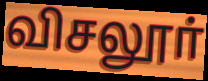
விசலூர்